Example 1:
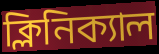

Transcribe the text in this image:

ক্লিনিক্যাল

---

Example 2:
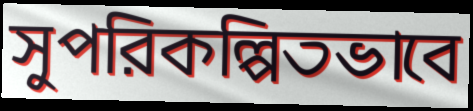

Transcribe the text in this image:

সুপরিকল্পিতভাবে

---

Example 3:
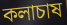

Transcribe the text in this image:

কলাচাষ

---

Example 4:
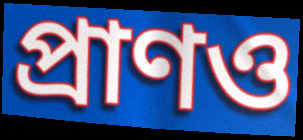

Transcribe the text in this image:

প্রাণও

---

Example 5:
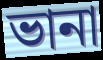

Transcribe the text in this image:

ভানা